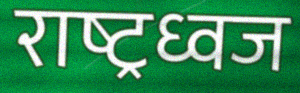
राष्ट्रध्वज